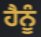
ਹੈਨੂੰ